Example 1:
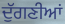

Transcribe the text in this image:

ਦੁੱਗਣੀਆਂ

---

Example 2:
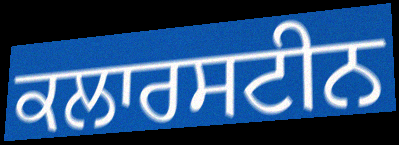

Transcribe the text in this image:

ਕਲਾਰਸਟੀਨ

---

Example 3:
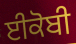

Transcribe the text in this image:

ਈਕੋਬੀ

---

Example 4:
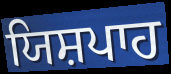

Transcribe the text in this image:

ਯਿਸ਼ਪਾਹ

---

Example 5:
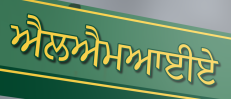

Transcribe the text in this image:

ਐਲਐਮਆਈਏ